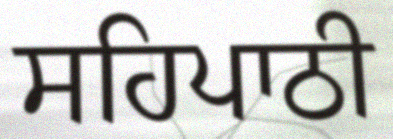
ਸਹਿਪਾਠੀ